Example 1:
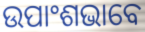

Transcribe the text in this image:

ଉପାଂଶଭାବେ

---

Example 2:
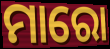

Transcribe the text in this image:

ମାରୋ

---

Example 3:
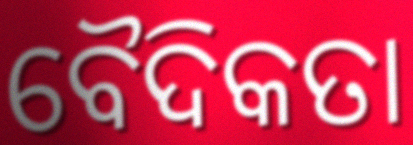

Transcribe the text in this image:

ବୈଦିକତା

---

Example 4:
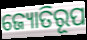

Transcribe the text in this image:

ଜ୍ୟୋତିରୂପ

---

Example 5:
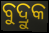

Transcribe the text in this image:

ବୁଦ୍ରୁକ